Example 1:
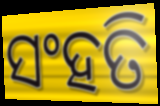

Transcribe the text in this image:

ସଂହତି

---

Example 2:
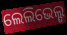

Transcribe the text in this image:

ଲେଲିଭେଲ୍ଡ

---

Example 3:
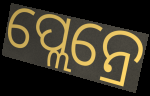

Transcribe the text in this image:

ପ୍ଲେନ୍ରେ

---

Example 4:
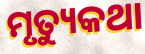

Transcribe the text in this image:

ମୃତ୍ୟୁକଥା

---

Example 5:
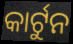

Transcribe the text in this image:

କାର୍ଟୁନ